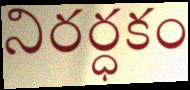
నిరర్ధకం